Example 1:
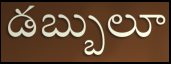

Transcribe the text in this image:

డబ్బులూ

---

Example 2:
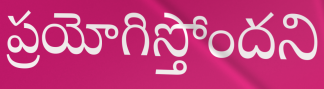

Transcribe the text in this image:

ప్రయోగిస్తోందని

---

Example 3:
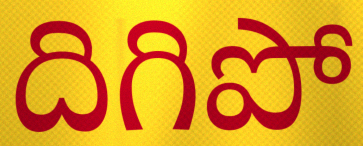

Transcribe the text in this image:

దిగిపో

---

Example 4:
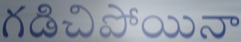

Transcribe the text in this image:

గడిచిపోయినా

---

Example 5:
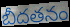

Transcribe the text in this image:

బీదతనం